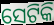
ସେଟିକି